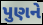
પુણને